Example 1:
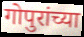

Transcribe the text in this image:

गोपुरांच्या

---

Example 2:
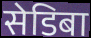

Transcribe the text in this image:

सेडिबा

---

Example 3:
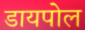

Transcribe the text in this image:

डायपोल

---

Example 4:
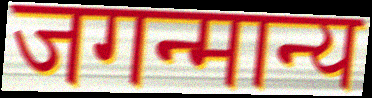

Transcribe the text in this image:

जगन्मान्य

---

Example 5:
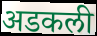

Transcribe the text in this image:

अडकली